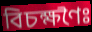
বিচক্ষণৈঃ